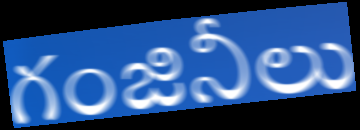
గంజినీలు